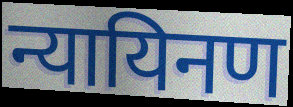
न्यायिनण